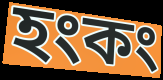
হংকং